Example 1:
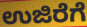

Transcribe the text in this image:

ಉಜಿರೆಗೆ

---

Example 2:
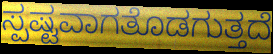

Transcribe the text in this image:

ಸ್ಪಷ್ಟವಾಗತೊಡಗುತ್ತದೆ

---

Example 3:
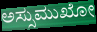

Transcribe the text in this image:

ಅಸ್ಸುಮುಖೋ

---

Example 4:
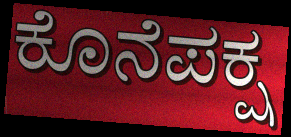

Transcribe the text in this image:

ಕೊನೆಪಕ್ಷ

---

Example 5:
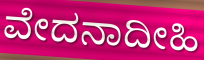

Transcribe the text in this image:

ವೇದನಾದೀಹಿ